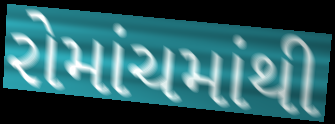
રોમાંચમાંથી